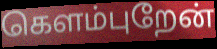
கெளம்புறேன்